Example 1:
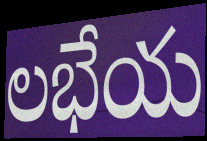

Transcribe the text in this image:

లభేయ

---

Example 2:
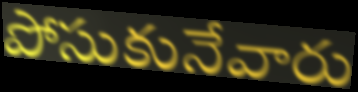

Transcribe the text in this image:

పోసుకునేవారు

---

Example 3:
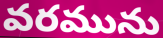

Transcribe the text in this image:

వరమును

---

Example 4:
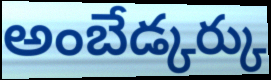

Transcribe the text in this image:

అంబేడ్కర్కు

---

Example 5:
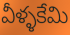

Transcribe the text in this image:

వీళ్ళకేమి